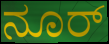
ನೂರ್